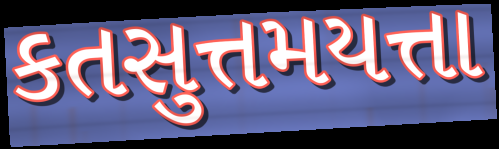
કતસુત્તમયત્તા